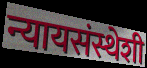
न्यायसंस्थेशी